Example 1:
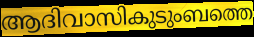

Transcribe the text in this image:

ആദിവാസികുടുംബത്തെ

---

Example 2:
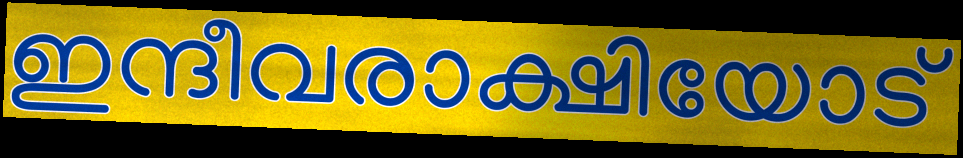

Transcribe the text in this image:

ഇന്ദീവരാക്ഷിയോട്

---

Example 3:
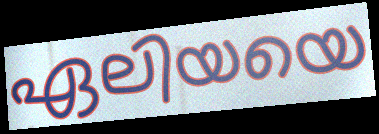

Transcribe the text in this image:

ഏലിയയെ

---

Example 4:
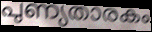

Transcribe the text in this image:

പുണ്യതാരകം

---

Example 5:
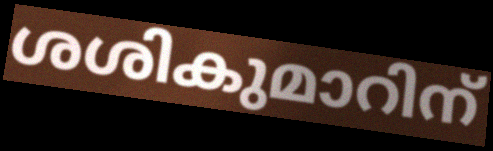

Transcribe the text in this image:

ശശികുമാറിന്